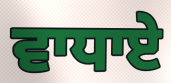
ਵਾਧਾਏ